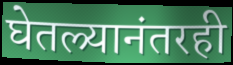
घेतल्यानंतरही